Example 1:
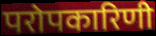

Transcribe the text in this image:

परोपकारिणी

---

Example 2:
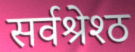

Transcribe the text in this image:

सर्वश्रेश्ठ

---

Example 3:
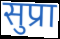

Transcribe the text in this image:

सुप्रा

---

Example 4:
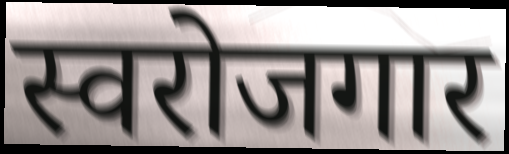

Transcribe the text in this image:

स्वरोजगार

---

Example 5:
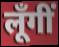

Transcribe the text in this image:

लूँगीं